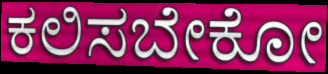
ಕಲಿಸಬೇಕೋ